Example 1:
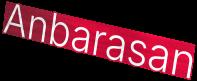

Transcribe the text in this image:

Anbarasan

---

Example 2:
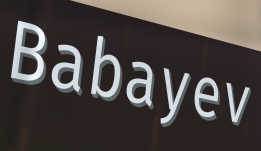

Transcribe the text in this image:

Babayev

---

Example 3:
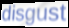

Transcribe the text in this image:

disgust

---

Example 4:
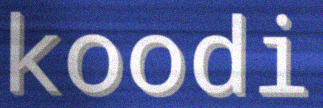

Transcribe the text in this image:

koodi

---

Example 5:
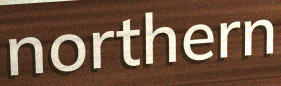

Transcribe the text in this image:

northern